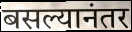
बसल्यानंतर